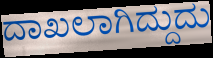
ದಾಖಲಾಗಿದ್ದುದು